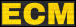
ECM